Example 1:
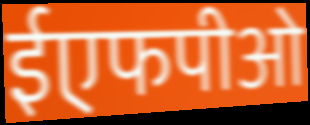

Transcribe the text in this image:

ईएफपीओ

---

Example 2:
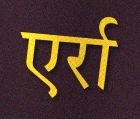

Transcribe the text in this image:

एर्रा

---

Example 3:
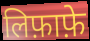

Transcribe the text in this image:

लिफ़ाफ़े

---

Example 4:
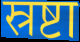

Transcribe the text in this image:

स्रष्टा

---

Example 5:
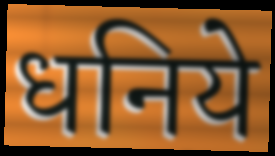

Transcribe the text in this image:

धनिये